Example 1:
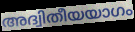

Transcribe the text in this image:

അദ്വിതീയയാഗം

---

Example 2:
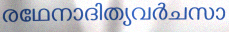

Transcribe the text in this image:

രഥേനാദിത്യവർചസാ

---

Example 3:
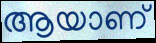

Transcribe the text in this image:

ആയാണ്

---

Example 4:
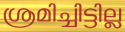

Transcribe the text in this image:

ശ്രമിച്ചിട്ടില്ല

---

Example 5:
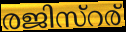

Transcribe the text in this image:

രജിസ്റര്